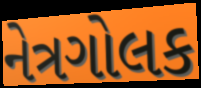
નેત્રગોલક